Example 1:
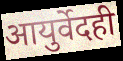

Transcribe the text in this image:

आयुर्वेदही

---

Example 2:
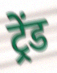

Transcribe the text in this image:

ट्रेंड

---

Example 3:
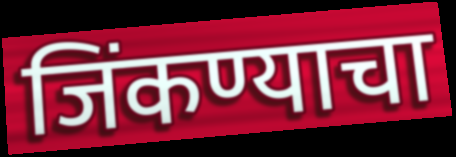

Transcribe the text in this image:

जिंकण्याचा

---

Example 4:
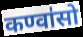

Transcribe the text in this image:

कण्वा॑सो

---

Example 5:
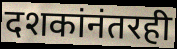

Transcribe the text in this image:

दशकांनंतरही